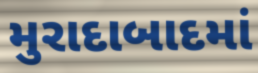
મુરાદાબાદમાં